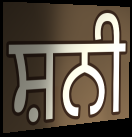
ਸ਼ਨੀ